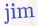
jim